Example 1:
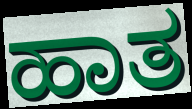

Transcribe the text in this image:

ಹಾತ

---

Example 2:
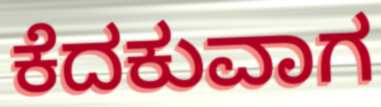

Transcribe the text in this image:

ಕೆದಕುವಾಗ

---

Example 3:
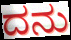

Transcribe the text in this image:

ದನು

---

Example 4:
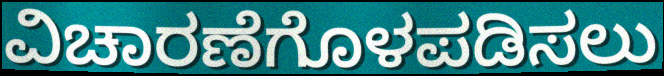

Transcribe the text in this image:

ವಿಚಾರಣೆಗೊಳಪಡಿಸಲು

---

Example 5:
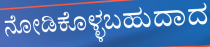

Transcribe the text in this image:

ನೋಡಿಕೊಳ್ಳಬಹುದಾದ